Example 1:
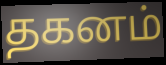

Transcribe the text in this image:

தகனம்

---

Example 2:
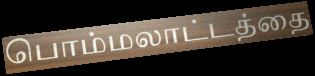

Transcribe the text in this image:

பொம்மலாட்டத்தை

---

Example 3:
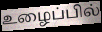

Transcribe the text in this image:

உழைப்பில்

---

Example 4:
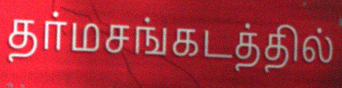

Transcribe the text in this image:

தர்மசங்கடத்தில்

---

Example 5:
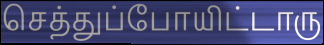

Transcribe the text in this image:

செத்துப்போயிட்டாரு